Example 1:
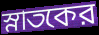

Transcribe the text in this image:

স্নাতকের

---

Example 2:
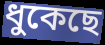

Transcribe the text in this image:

ধুকেছে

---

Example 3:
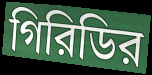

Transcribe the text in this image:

গিরিডির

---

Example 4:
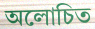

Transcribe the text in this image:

অলোচিত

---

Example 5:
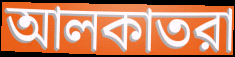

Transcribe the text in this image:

আলকাতরা